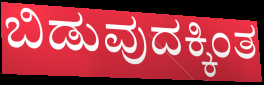
ಬಿಡುವುದಕ್ಕಿಂತ